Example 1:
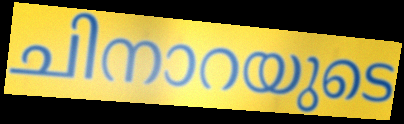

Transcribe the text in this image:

ചിനാറയുടെ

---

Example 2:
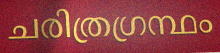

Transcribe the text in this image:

ചരിത്രഗ്രന്ഥം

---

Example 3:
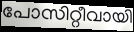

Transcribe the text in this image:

പോസിറ്റീവായി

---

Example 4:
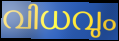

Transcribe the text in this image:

വിധവും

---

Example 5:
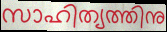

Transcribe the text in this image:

സാഹിത്യത്തിനു